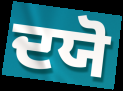
ਦਯੋ